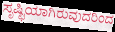
ಸೃಷ್ಟಿಯಾಗಿರುವುದರಿಂದ